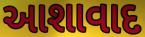
આશાવાદ